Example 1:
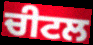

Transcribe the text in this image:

ਚੀਟਲ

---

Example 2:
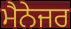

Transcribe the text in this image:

ਮੈਨੇਜਰ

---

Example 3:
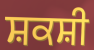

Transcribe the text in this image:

ਸ਼ਕਸ਼ੀ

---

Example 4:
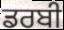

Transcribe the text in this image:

ਡਰਬੀ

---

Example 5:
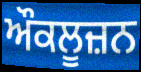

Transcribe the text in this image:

ਔਕਲੂਜ਼ਨ